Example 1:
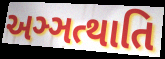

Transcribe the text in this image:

અઞ્ઞત્થાતિ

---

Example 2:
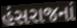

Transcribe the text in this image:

હંસરાજનાં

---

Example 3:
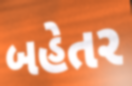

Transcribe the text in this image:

બહેતર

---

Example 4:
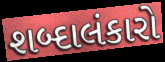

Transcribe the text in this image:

શબ્દાલંકારો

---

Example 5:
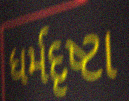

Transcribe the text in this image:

ધર્મદૃષ્ટા